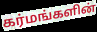
கர்மங்களின்